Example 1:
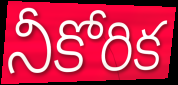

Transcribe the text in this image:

నీకోరిక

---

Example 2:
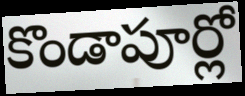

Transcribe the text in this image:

కొండాపూర్లో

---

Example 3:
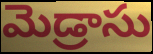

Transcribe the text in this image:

మెడ్రాసు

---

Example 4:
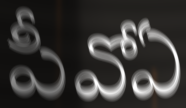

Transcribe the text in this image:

పీవోఏ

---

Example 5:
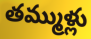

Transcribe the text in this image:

తమ్ముళ్లు